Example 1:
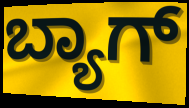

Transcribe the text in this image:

ಬ್ಯಾಗ್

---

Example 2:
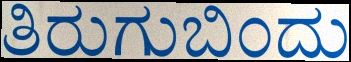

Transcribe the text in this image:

ತಿರುಗುಬಿಂದು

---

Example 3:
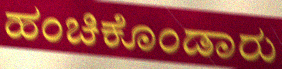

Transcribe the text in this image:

ಹಂಚಿಕೊಂಡಾರು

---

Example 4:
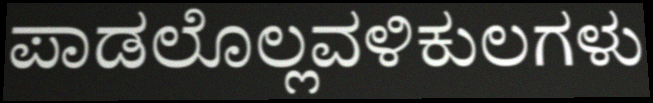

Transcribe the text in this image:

ಪಾಡಲೊಲ್ಲವಳಿಕುಲಗಳು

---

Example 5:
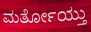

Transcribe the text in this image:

ಮರ್ತೋಯ್ತು